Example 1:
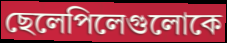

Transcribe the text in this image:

ছেলেপিলেগুলোকে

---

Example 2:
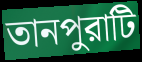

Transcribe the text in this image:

তানপুরাটি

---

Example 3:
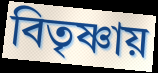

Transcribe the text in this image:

বিতৃষ্ণায়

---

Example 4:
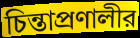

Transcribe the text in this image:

চিন্তাপ্রণালীর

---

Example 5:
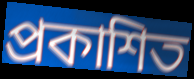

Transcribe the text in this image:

প্রকাশিত